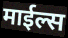
माईल्स